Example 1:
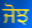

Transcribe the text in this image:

ਜੋਝ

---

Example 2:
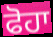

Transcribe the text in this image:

ਫੋਹਾ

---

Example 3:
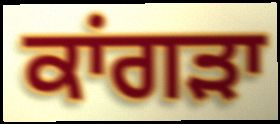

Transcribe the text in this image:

ਕਾਂਗੜਾ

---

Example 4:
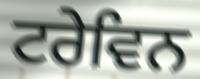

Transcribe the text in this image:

ਟਰੇਵਿਨ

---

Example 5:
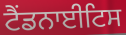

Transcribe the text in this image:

ਟੈਂਡਨਾਈਟਿਸ